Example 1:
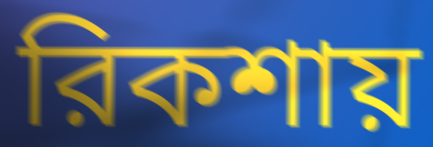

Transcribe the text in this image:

রিকশায়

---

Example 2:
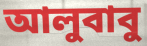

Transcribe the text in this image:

আলুবাবু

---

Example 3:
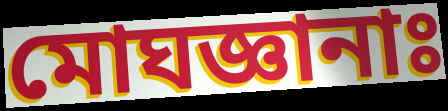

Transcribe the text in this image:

মোঘজ্ঞানাঃ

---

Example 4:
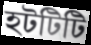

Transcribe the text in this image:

হটটিটি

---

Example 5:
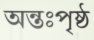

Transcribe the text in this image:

অন্তঃপৃষ্ঠ